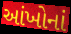
આંખોનાં